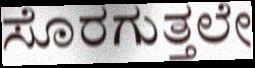
ಸೊರಗುತ್ತಲೇ